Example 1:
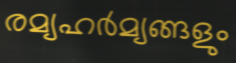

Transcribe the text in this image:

രമ്യഹർമ്യങ്ങളും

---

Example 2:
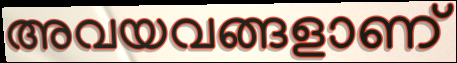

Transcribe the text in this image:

അവയവങ്ങളാണ്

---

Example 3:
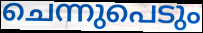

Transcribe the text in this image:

ചെന്നുപെടും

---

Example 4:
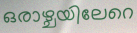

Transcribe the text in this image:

ഒരാഴ്ചയിലേറെ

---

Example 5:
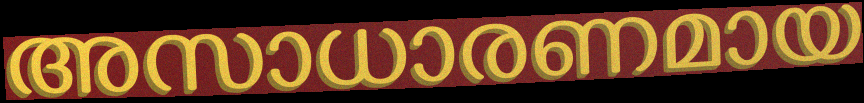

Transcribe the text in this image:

അസാധാരണമായ